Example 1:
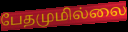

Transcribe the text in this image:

பேதமுமில்லை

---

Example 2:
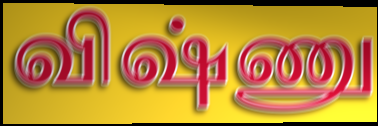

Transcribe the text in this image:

விஷ்ணு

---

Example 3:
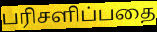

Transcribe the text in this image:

பரிசளிப்பதை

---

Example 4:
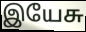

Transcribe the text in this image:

இயேசு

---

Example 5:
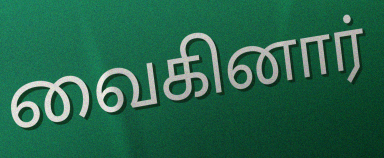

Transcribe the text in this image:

வைகினார்